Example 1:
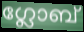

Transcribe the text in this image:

ഗ്ലോബ്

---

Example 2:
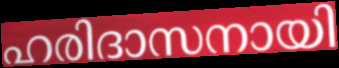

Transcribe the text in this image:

ഹരിദാസനായി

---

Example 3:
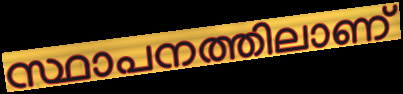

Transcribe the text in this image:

സ്ഥാപനത്തിലാണ്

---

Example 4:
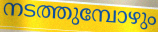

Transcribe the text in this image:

നടത്തുമ്പോഴും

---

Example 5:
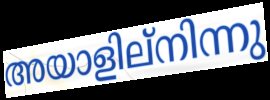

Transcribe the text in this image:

അയാളില്നിന്നു